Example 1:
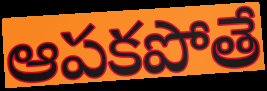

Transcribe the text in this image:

ఆపకపోతే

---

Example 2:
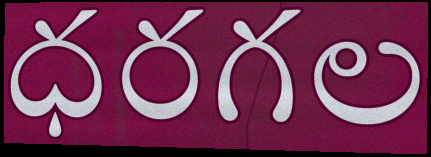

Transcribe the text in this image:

ధరగల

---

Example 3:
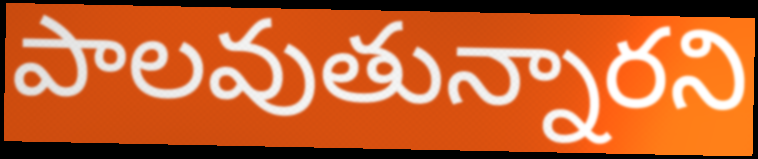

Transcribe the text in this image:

పాలవుతున్నారని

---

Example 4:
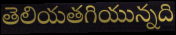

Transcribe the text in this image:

తెలియతగియున్నది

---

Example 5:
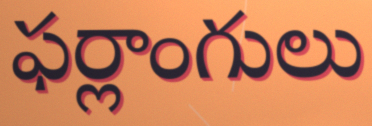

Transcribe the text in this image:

ఫర్లాంగులు